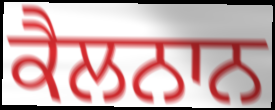
ਕੈਲਨਾਨ